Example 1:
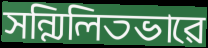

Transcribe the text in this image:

সন্মিলিতভাৱে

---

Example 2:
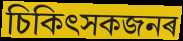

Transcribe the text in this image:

চিকিৎসকজনৰ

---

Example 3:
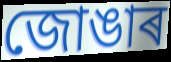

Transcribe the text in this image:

জোঙাৰ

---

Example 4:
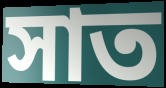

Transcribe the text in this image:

সাত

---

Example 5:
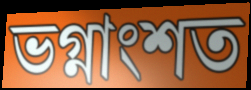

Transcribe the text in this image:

ভগ্নাংশত